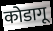
कोडागू